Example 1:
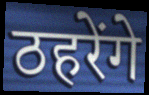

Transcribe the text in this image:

ठहरेंगे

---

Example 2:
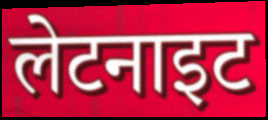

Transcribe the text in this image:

लेटनाइट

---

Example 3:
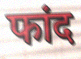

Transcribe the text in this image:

फांद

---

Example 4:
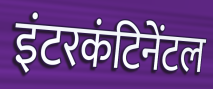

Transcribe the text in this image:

इंटरकंटिनेंटल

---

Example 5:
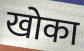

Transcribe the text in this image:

खोका